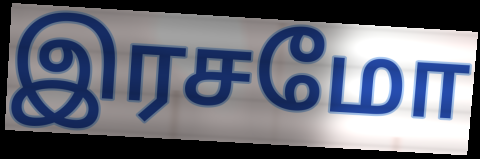
இரசமோ